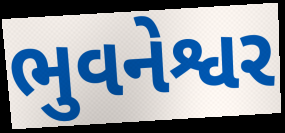
ભુવનેશ્વર